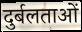
दुर्बलताओं